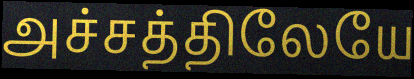
அச்சத்திலேயே